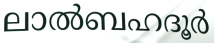
ലാൽബഹദൂർ